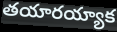
తయారయ్యాక